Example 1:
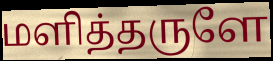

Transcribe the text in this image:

மளித்தருளே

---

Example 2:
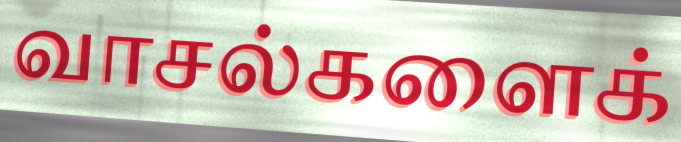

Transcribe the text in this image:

வாசல்களைக்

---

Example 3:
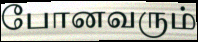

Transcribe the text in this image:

போனவரும்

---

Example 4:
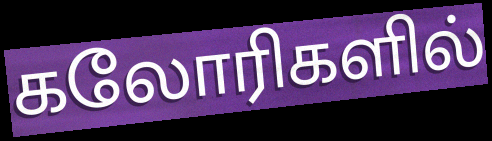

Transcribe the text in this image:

கலோரிகளில்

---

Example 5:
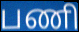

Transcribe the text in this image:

பணி